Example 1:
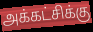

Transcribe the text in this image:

அக்கட்சிக்கு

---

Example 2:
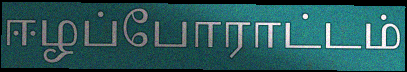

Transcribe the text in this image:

ஈழப்போராட்டம்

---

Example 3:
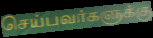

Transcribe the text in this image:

செய்பவர்களுக்கு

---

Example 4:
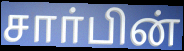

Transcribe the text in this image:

சார்பின்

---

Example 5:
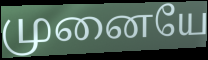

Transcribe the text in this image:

முனையே